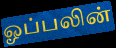
ஓப்பலின்